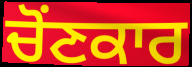
ਚੋਂਣਕਾਰ